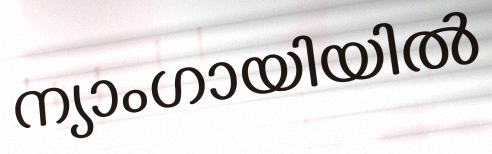
ന്യാംഗായിയിൽ